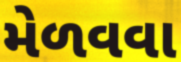
મેળવવા